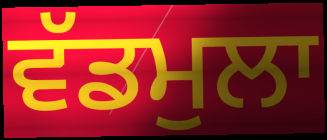
ਵੱਡਮੁਲਾ